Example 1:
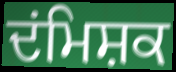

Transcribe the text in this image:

ਦਂਮਿਸ਼ਕ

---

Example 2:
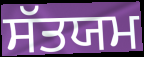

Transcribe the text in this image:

ਸੱਤਯਮ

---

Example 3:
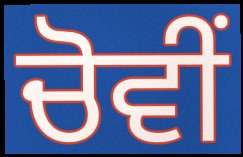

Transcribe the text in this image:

ਚੋਵੀਂ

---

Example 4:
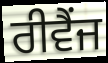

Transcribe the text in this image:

ਰੀਵੈਂਜ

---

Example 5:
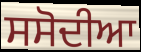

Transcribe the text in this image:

ਸਸੋਦੀਆ